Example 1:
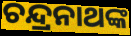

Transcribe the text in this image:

ଚନ୍ଦ୍ରନାଥଙ୍କ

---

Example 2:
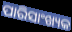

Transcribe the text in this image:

ପାରିସାଂଖ୍ୟକ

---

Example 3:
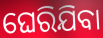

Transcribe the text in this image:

ଘେରିଯିବା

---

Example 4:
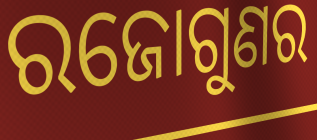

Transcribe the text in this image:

ରଜୋଗୁଣର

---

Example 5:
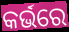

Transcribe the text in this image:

କର୍ଭରେ